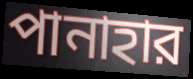
পানাহার